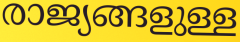
രാജ്യങ്ങളുള്ള